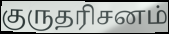
குருதரிசனம்